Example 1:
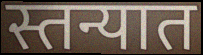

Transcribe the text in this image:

स्तन्यात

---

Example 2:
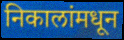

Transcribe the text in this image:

निकालांमधून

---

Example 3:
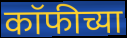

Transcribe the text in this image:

कॉफीच्या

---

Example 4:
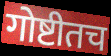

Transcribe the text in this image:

गोष्टीतच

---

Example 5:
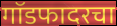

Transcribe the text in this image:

गॉडफादरचा